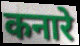
कनारे